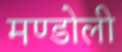
मण्डोली